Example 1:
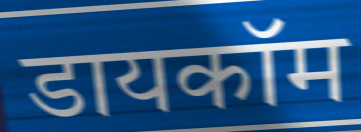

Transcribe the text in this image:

डायकॉम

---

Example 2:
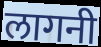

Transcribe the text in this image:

लागनी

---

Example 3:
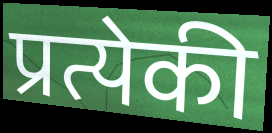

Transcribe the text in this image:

प्रत्येकी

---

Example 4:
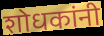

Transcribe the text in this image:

शोधकांनी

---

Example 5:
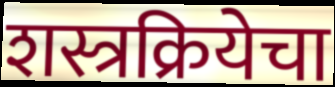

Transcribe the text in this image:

शस्त्रक्रियेचा